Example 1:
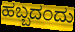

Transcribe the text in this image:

ಹಬ್ಬದಂದು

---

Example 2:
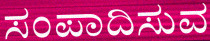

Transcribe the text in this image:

ಸಂಪಾದಿಸುವ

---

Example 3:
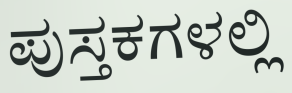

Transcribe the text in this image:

ಪುಸ್ತಕಗಳಲ್ಲಿ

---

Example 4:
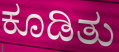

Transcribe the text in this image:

ಕೂಡಿತು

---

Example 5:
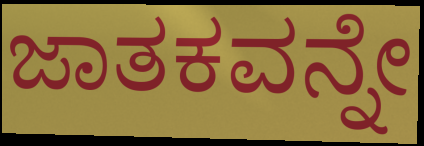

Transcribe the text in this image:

ಜಾತಕವನ್ನೇ